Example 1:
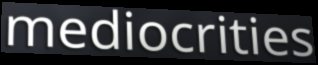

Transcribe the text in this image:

mediocrities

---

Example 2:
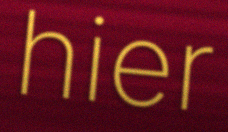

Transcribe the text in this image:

hier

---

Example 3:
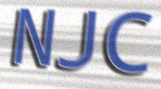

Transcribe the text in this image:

NJC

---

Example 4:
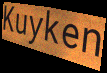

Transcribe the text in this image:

Kuyken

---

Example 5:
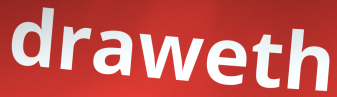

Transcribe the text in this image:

draweth